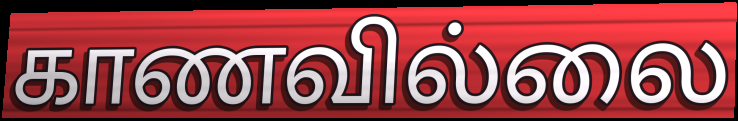
காணவில்லை